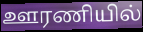
ஊரணியில்